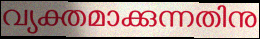
വ്യക്തമാക്കുന്നതിനു